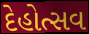
દેહોત્સવ